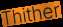
Thither